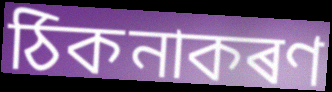
ঠিকনাকৰণ